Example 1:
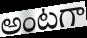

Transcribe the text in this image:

అంటగా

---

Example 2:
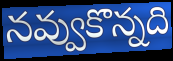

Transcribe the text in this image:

నవ్వుకొన్నది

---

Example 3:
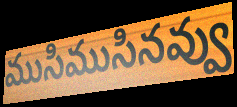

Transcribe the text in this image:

ముసిముసినవ్వు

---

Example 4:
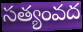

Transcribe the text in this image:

సత్యంవద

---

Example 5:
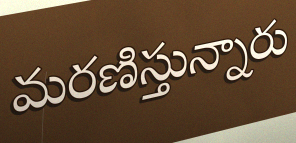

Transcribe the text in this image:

మరణిస్తున్నారు